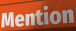
Mention